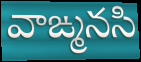
వాఙ్మనసి